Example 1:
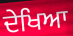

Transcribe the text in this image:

ਦੇਖਿਆ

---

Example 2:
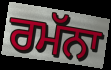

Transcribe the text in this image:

ਰਮੱਨਾ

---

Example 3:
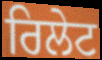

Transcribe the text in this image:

ਰਿਲੇਟ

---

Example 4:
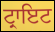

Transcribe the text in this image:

ਟ੍ਰਾਇਟ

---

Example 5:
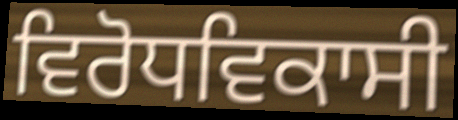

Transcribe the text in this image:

ਵਿਰੋਧਵਿਕਾਸੀ